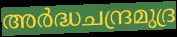
അർദ്ധചന്ദ്രമുദ്ര